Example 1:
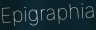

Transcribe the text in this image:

Epigraphia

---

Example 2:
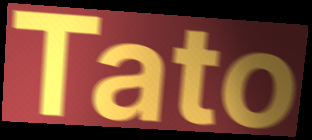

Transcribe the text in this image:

Tato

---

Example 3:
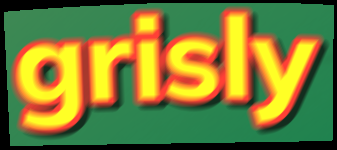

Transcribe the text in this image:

grisly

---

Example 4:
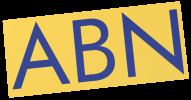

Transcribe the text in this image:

ABN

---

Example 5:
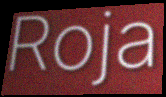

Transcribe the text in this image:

Roja